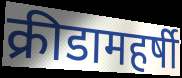
क्रीडामहर्षी